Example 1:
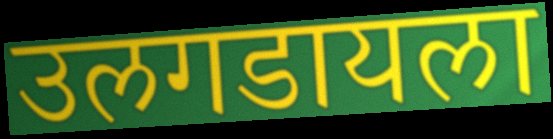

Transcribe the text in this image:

उलगडायला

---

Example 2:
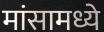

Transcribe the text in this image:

मांसामध्ये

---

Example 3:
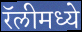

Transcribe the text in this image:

रॅलीमध्ये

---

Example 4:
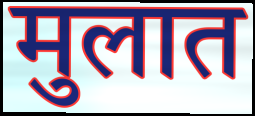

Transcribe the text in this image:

मुलात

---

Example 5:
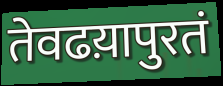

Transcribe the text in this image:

तेवढय़ापुरतं